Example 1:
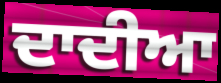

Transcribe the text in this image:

ਦਾਦੀਆ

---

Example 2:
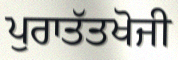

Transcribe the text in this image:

ਪੁਰਾਤੱਤਖੋਜੀ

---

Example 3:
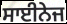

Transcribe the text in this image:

ਸਾਈਨੇਜ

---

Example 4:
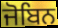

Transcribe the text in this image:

ਜੋਬਿਨ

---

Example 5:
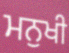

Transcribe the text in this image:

ਮਨੁਖੀ